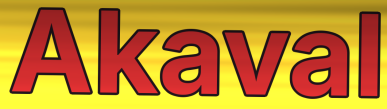
Akaval